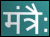
मंत्रैः